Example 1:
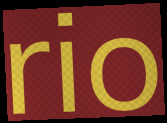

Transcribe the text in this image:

rio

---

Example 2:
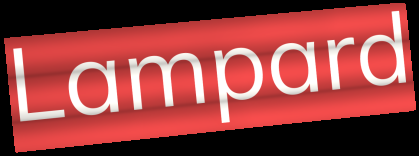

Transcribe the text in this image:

Lampard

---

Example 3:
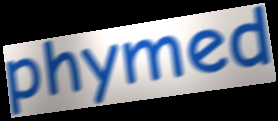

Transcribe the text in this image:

phymed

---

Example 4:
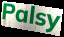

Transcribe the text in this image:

Palsy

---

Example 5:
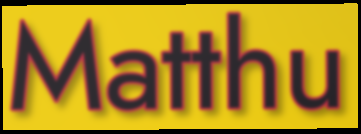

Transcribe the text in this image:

Matthu